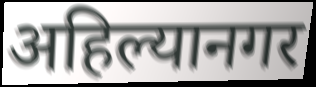
अहिल्यानगर